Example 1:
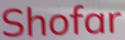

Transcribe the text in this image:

Shofar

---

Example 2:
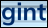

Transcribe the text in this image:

gint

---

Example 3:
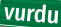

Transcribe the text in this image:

vurdu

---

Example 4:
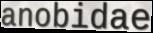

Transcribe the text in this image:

anobidae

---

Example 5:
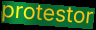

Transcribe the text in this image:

protestor